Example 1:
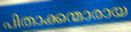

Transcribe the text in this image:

പിതാക്കന്മാരായ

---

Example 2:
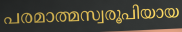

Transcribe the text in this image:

പരമാത്മസ്വരൂപിയായ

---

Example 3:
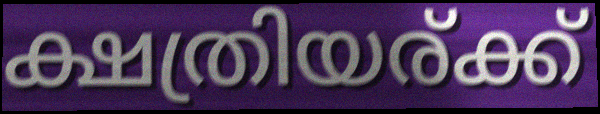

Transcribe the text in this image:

ക്ഷത്രിയര്ക്ക്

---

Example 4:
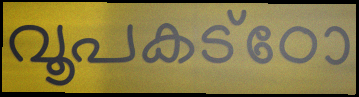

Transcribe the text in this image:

വൂപകട്ഠോ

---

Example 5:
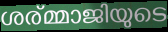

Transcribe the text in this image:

ശര്മ്മാജിയുടെ